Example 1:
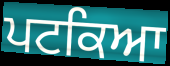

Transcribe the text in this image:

ਪਟਕਿਆ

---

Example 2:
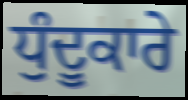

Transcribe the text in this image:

ਧੁੰਦੂਕਾਰੇ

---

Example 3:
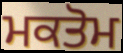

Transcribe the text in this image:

ਮਕਤੋਮ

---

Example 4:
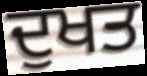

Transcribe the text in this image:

ਦੁਖਤ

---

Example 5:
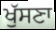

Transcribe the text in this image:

ਖੁੱਸਣਾ